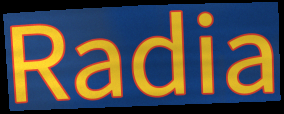
Radia